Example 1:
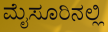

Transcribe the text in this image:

ಮೈಸೂರಿನಲ್ಲಿ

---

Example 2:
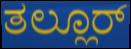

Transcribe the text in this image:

ತಲ್ಲೂರ್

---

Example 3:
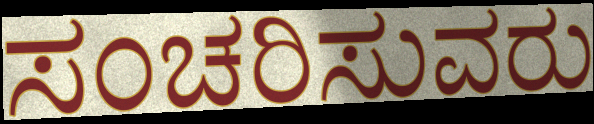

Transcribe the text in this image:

ಸಂಚರಿಸುವರು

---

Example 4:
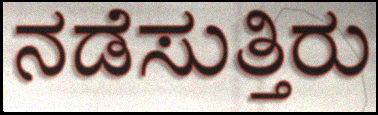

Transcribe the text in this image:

ನಡೆಸುತ್ತಿರು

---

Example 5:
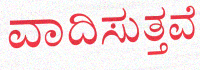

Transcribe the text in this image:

ವಾದಿಸುತ್ತವೆ